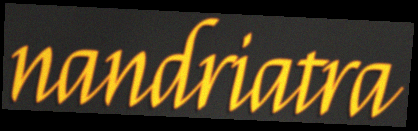
nandriatra